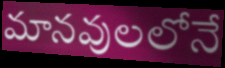
మానవులలోనే